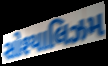
સોશ્યાલિઝમ